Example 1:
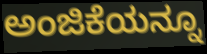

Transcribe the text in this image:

ಅಂಜಿಕೆಯನ್ನೂ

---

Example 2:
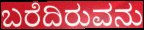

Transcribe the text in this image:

ಬರೆದಿರುವನು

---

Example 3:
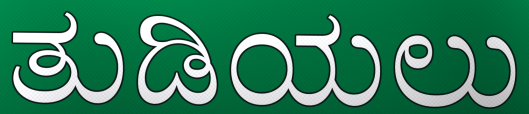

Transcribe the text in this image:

ತುಡಿಯಲು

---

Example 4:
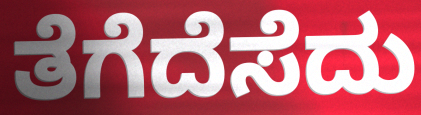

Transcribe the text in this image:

ತೆಗೆದೆಸೆದು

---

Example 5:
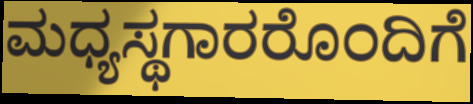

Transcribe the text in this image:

ಮಧ್ಯಸ್ಥಗಾರರೊಂದಿಗೆ